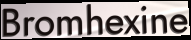
Bromhexine